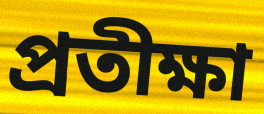
প্ৰতীক্ষা